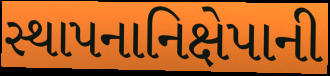
સ્થાપનાનિક્ષેપાની